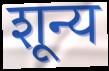
शून्य